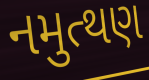
નમુત્થણ